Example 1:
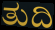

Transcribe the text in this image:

ತುದಿ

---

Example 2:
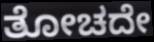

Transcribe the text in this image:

ತೋಚದೇ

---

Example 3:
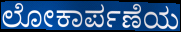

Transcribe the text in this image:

ಲೋಕಾರ್ಪಣೆಯ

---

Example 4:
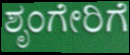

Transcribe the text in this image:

ಶೃಂಗೇರಿಗೆ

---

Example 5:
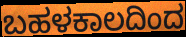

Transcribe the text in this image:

ಬಹಳಕಾಲದಿಂದ